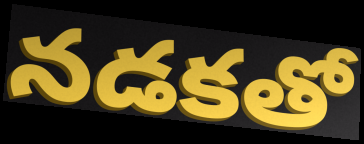
నడకతో